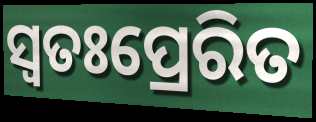
ସ୍ୱତଃପ୍ରେରିତ